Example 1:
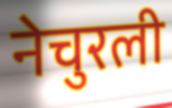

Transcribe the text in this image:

नेचुरली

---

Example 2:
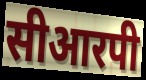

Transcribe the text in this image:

सीआरपी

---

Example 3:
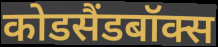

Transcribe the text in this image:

कोडसैंडबॉक्स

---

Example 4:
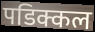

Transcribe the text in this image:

पडिक्कल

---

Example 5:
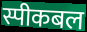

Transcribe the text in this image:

स्पीकबल